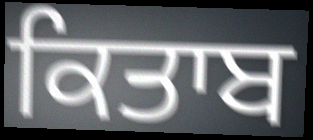
ਕਿਤਾਬ